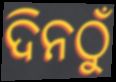
ଦିନଠୁଁ